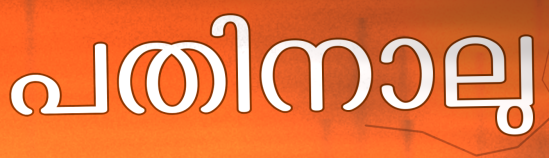
പതിനാലു